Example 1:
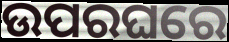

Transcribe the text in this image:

ଉପରଘରେ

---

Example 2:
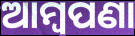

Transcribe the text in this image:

ଆମ୍ବପଣା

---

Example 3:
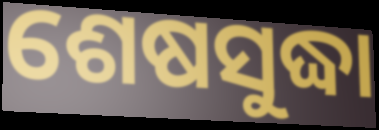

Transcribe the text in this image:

ଶେଷସୁଦ୍ଧା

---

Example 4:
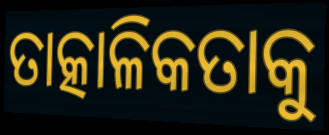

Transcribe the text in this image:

ତାତ୍କାଳିକତାକୁ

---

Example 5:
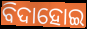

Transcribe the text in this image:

ବିଦାହୋଇ